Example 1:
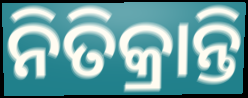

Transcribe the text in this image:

ନିତିକ୍ରାନ୍ତି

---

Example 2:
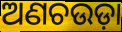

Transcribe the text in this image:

ଅଣଚଉଡ଼ା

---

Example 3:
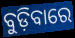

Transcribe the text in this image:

ବୁଡ଼ିବାରେ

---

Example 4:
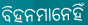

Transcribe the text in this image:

ବିହନମାନେହିଁ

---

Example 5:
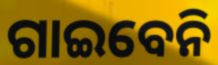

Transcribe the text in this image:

ଗାଇବେନି